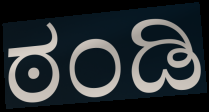
ಠಂಡಿ